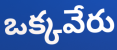
ఒక్కవేరు